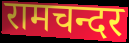
रामचन्दर